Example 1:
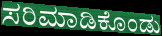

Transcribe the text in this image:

ಸರಿಮಾಡಿಕೊಂಡು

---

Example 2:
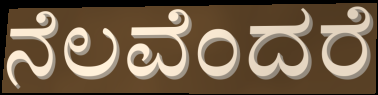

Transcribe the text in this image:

ನೆಲವೆಂದರೆ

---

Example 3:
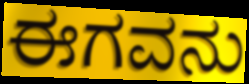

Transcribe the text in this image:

ಈಗವನು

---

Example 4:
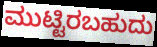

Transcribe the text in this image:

ಮುಟ್ಟಿರಬಹುದು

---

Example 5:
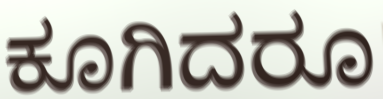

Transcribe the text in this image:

ಕೂಗಿದರೂ